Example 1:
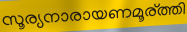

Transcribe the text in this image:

സൂര്യനാരായണമൂര്ത്തി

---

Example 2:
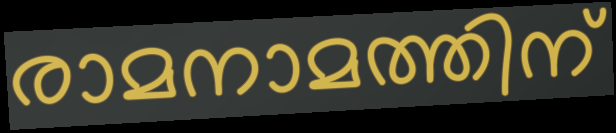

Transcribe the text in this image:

രാമനാമത്തിന്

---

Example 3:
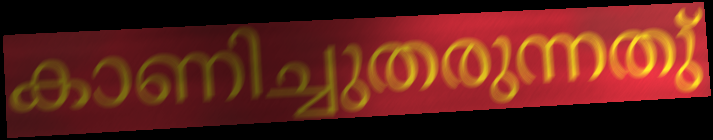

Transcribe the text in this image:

കാണിച്ചുതരുന്നതു്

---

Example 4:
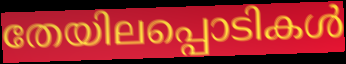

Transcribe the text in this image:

തേയിലപ്പൊടികൾ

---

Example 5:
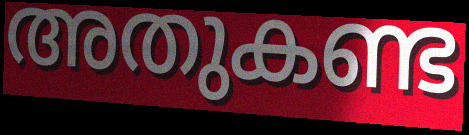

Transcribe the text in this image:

അതുകണ്ട